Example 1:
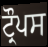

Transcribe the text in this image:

ਟ੍ਰੌਪਸ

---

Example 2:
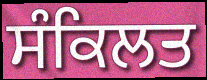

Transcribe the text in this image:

ਸੰਕਿਲਤ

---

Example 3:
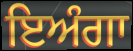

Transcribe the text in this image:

ਇਅੰਗਾ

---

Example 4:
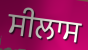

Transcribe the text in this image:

ਸੀਲਾਸ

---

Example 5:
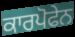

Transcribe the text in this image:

ਕਾਰਪੋਫੇਨ